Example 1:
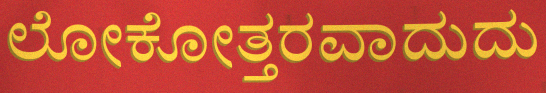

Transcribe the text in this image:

ಲೋಕೋತ್ತರವಾದುದು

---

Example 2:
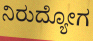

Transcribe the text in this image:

ನಿರುದ್ಯೋಗ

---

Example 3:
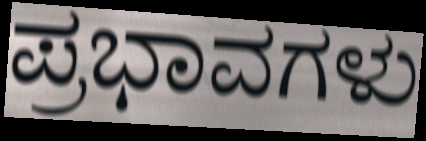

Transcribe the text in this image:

ಪ್ರಭಾವಗಳು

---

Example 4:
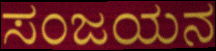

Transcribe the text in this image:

ಸಂಜಯನ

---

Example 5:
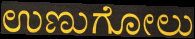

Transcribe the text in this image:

ಉಣುಗೋಲು